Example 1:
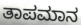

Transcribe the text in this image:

ತಾಪಮಾನ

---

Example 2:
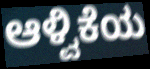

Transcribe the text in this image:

ಆಳ್ವಿಕೆಯ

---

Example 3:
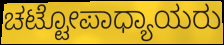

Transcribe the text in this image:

ಚಟ್ಟೋಪಾಧ್ಯಾಯರು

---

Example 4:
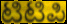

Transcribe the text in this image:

ಟಿಟಿಪಿ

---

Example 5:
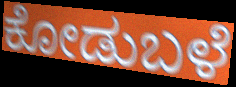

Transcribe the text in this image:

ಕೋಡುಬಳೆ